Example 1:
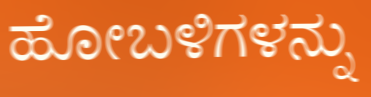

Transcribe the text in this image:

ಹೋಬಳಿಗಳನ್ನು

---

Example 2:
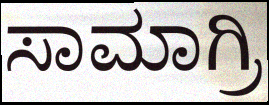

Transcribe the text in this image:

ಸಾಮಾಗ್ರಿ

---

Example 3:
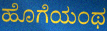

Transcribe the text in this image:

ಹೊಗೆಯಂಥ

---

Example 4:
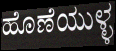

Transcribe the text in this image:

ಹೊಣೆಯುಳ್ಳ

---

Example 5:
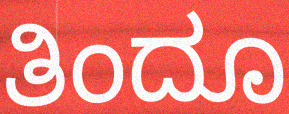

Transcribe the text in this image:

ತಿಂದೂ